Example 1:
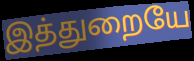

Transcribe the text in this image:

இத்துறையே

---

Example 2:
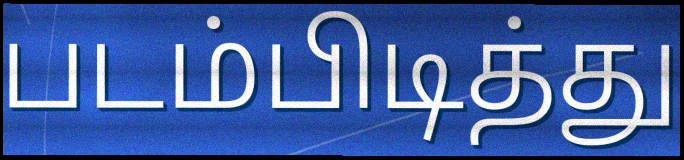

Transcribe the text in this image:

படம்பிடித்து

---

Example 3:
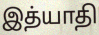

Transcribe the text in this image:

இத்யாதி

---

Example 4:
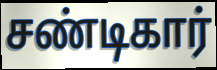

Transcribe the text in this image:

சண்டிகார்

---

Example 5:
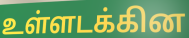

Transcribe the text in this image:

உள்ளடக்கின